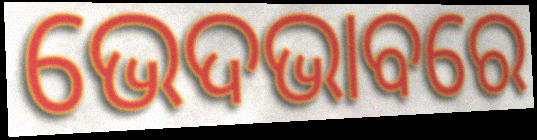
ଭେଦଭାବରେ